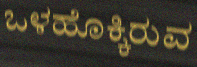
ಒಳಹೊಕ್ಕಿರುವ